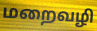
மறைவழி